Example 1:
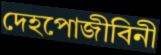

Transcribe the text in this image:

দেহপোজীবিনী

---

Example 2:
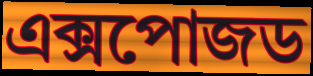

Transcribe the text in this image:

এক্সপোজড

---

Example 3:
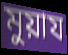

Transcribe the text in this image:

মুয়ায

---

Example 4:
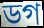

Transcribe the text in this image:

ডগ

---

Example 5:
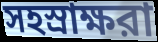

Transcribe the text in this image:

সহস্রাক্ষরা